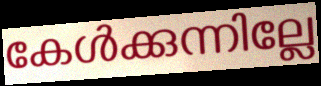
കേൾക്കുന്നില്ലേ